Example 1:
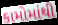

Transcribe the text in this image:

કામોમાંથી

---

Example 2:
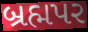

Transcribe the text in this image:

બ્રહ્મપર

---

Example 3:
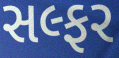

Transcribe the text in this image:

સલ્ફર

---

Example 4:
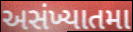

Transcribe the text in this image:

અસંખ્યાતમા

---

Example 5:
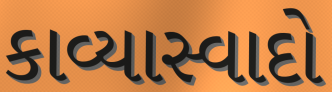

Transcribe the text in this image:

કાવ્યાસ્વાદો